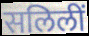
सलिलीं